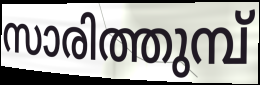
സാരിത്തുമ്പ്